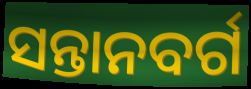
ସନ୍ତାନବର୍ଗ